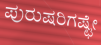
ಪುರುಷರಿಗಷ್ಟೇ